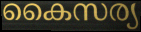
കൈസര്യ